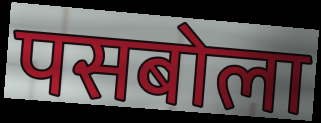
पसबोला